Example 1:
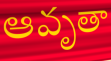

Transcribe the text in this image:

ఆవృతా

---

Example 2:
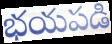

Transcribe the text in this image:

భయపడి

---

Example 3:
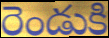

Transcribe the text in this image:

రెండుకి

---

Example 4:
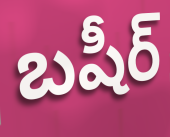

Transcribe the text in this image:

బషీర్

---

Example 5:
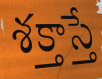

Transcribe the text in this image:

శక్తాస్తే